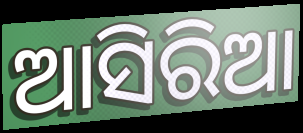
ଆସିରିଆ